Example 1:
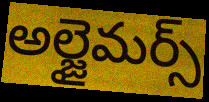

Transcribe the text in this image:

అల్జైమర్స్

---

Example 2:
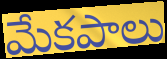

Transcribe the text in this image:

మేకపాలు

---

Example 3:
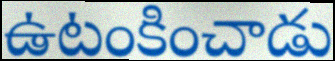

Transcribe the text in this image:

ఉటంకించాడు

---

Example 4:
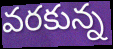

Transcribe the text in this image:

వరకున్న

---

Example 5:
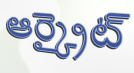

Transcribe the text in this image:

ఆర్క్రైట్